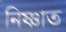
নিষ্ণাত